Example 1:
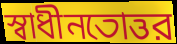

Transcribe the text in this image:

স্বাধীনতোত্তর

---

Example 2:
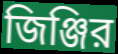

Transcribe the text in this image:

জিঞ্জির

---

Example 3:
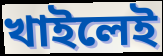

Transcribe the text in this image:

খাইলেই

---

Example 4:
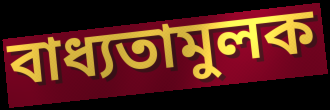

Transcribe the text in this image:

বাধ্যতামুলক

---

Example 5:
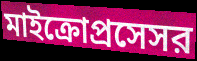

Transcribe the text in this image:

মাইক্রোপ্রসেসর